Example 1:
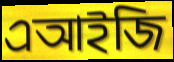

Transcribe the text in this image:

এআইজি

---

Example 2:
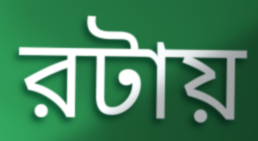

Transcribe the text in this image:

রটায়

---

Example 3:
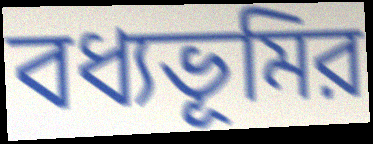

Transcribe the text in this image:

বধ্যভূমির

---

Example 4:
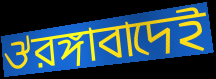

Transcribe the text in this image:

ঔরঙ্গাবাদেই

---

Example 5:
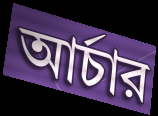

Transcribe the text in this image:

আর্চার